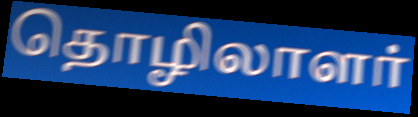
தொழிலாளர்